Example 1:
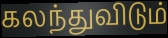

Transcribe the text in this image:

கலந்துவிடும்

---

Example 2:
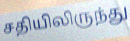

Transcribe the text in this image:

சதியிலிருந்து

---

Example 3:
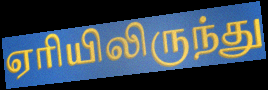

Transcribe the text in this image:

ஏரியிலிருந்து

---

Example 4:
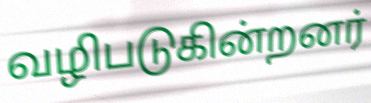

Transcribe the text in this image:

வழிபடுகின்றனர்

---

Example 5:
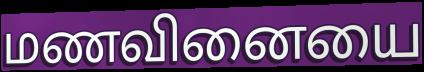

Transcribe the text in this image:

மணவினையை